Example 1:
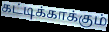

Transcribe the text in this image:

கட்டிக்காக்கும்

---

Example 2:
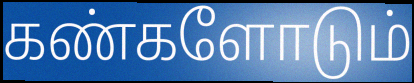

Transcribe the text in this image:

கண்களோடும்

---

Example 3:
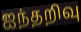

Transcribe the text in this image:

ஐந்தறிவு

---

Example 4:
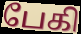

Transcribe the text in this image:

பேகி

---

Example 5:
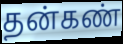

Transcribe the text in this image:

தன்கண்